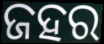
ଜହର